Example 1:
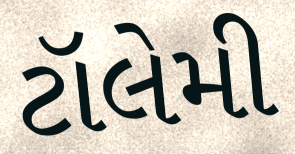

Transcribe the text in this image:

ટૉલેમી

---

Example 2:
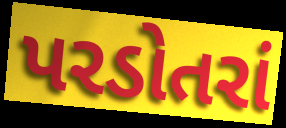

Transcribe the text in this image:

પરડોતરાં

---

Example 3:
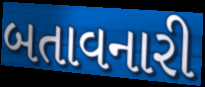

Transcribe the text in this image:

બતાવનારી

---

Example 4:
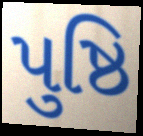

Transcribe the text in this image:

પુષ્ઠિ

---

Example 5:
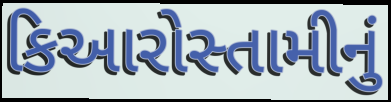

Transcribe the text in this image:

કિઆરોસ્તામીનું